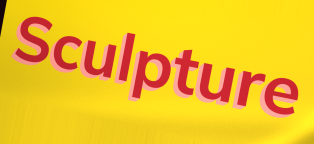
Sculpture